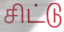
சிட்டு